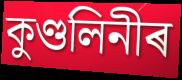
কুণ্ডলিনীৰ